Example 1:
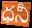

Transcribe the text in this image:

ధనీ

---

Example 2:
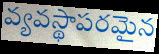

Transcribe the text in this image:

వ్యవస్థాపరమైన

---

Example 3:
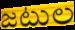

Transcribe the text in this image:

జటుల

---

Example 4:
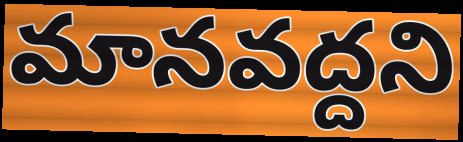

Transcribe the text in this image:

మానవద్దని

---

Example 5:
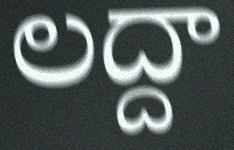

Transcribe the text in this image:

లద్దా